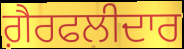
ਗ਼ੈਰਫਲੀਦਾਰ